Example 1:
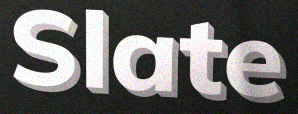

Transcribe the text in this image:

Slate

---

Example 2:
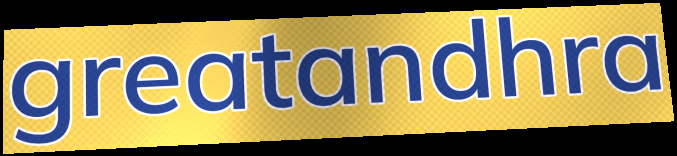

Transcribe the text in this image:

greatandhra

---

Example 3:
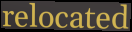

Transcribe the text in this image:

relocated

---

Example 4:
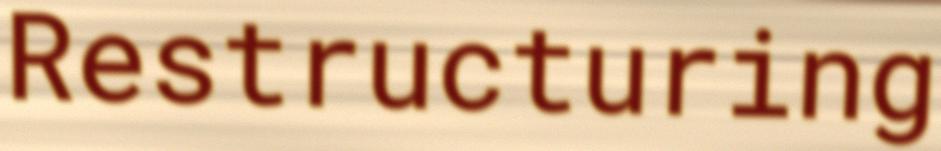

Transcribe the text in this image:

Restructuring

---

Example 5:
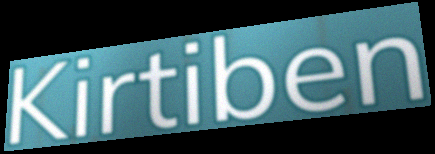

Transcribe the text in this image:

Kirtiben